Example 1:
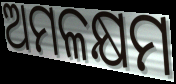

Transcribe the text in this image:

ଅମଳକ୍ଷମ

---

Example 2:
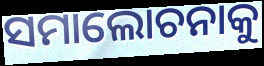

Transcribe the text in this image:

ସମାଲୋଚନାକୁ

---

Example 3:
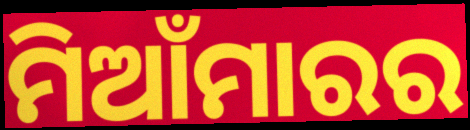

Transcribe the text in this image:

ମିଆଁମାରର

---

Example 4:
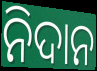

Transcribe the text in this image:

ନିଦାନ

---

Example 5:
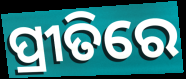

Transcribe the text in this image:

ପ୍ରୀତିରେ